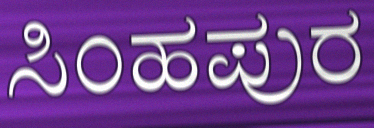
ಸಿಂಹಪುರ